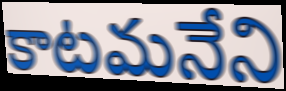
కాటమనేని